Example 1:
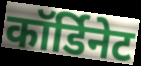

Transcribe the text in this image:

कॉर्डिनेट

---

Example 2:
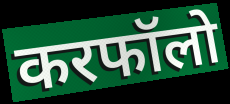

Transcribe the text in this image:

करफॉलो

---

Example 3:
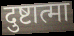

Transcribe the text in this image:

दुष्टात्मा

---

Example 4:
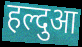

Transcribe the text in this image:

हल्दुआ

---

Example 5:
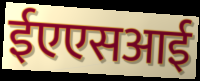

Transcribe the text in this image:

ईएएसआई